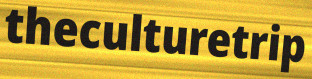
theculturetrip